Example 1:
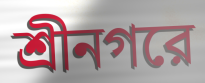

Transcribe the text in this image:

শ্রীনগরে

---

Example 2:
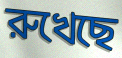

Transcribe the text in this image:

রুখেছে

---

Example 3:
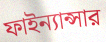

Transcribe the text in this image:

ফাইন্যান্সার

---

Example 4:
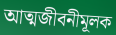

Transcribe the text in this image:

আত্মজীবনীমূলক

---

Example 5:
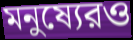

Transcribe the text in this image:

মনুষ্যেরও